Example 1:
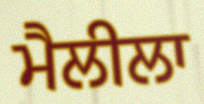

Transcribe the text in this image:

ਮੈਲੀਲਾ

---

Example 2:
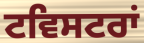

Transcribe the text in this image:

ਟਵਿਸਟਰਾਂ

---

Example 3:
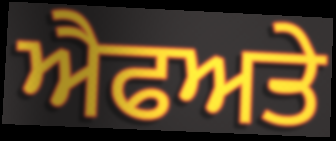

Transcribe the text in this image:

ਐਫਅਤੇ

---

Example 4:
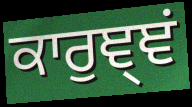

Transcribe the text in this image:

ਕਾਰੁਞ੍ਞਂ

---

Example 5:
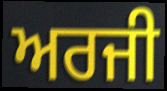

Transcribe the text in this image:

ਅਰਜੀ